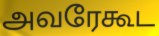
அவரேகூட